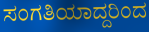
ಸಂಗತಿಯಾದ್ದರಿಂದ